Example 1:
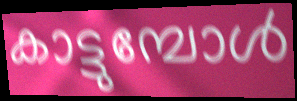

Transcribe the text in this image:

കാട്ടുമ്പോൾ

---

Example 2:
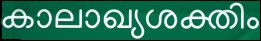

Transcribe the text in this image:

കാലാഖ്യശക്തിം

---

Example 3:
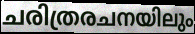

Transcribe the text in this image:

ചരിത്രരചനയിലും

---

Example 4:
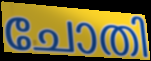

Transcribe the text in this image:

ചോതി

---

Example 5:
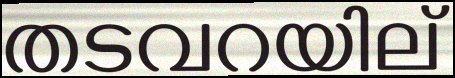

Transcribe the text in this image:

തടവറയില്